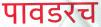
पावडरच